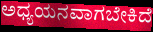
ಅಧ್ಯಯನವಾಗಬೇಕಿದೆ